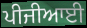
ਪੀਜੀਆਈ